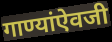
गाण्यांऐवजी